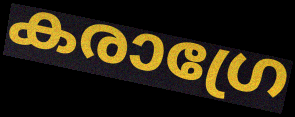
കരാഗ്രേ